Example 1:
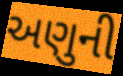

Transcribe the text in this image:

અણુની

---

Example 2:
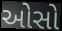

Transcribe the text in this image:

ઓસો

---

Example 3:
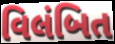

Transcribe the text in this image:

વિલંબિત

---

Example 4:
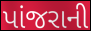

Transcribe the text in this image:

પાંજરાની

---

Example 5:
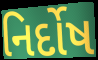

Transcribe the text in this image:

નિર્દોષ